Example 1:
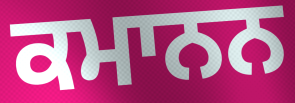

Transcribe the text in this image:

ਕਮਾਨਨ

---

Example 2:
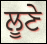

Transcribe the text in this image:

ਲੂਣੇ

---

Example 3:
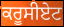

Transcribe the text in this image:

ਕਰੂਸੀਏਟ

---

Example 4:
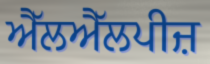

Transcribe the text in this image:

ਐੱਲਐੱਲਪੀਜ਼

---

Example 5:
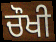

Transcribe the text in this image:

ਚੌਖੀ